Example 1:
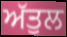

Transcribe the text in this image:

ਅੱਤੁਲ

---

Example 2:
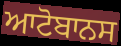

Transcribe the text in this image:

ਆਟੋਬਾਨਸ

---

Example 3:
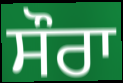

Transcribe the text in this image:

ਸੌਰਾ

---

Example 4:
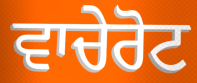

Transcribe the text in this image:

ਵਾਚੇਰੋਟ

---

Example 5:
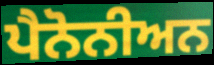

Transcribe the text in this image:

ਪੈਨੋਨੀਅਨ